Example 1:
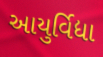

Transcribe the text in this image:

આયુર્વિદ્યા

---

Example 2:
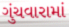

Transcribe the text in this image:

ગુંચવારામાં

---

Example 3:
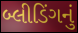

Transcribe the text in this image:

બ્લીડિંગનું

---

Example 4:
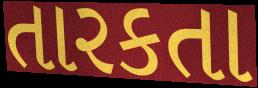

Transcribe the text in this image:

તારકતા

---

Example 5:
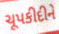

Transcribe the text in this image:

ચૂપકીદીને